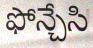
ఫోన్చేసి